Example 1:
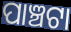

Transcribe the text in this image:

ପାଞ୍ଚଟା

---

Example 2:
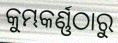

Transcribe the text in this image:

କୁମ୍ଭକର୍ଣ୍ଣଠାରୁ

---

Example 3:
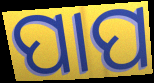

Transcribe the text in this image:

ପାପ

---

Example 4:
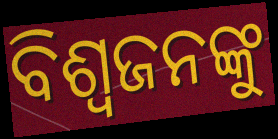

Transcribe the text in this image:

ବିଶ୍ୱଜନଙ୍କୁ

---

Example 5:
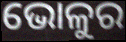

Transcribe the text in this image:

ଭୋଳୁର